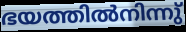
ഭയത്തിൽനിന്നു്